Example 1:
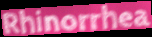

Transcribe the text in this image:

Rhinorrhea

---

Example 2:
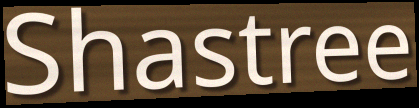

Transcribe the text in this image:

Shastree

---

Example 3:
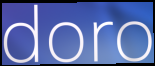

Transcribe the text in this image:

doro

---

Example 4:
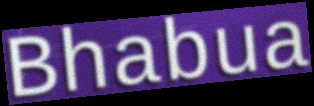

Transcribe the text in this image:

Bhabua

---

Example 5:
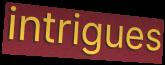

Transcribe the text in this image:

intrigues